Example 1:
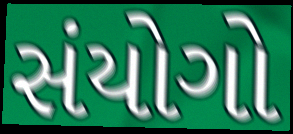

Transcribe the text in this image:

સંયોગો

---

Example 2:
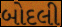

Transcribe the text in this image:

બોદલી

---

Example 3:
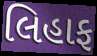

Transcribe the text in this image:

લિહાફ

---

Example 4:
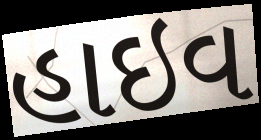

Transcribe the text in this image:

હાઇવ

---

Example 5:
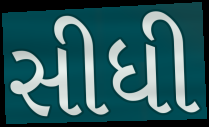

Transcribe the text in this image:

સીધી